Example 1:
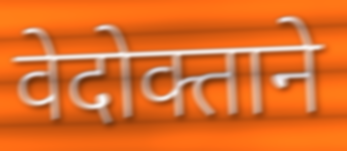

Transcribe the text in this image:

वेदोक्ताने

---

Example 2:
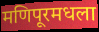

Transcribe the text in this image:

मणिपूरमधला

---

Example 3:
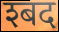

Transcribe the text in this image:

श्बद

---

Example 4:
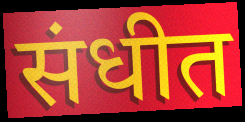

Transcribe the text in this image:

संधीत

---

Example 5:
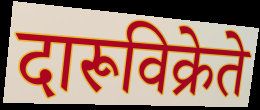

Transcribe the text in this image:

दारूविक्रेते